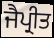
ਜੈਪ੍ਰੀਤ